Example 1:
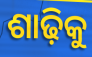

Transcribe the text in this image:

ଶାଢ଼ିକୁ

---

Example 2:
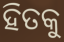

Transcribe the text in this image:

ହିତକୁ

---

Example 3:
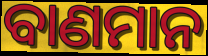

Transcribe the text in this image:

ବାଣମାନ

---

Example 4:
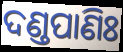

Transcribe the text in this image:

ଦଣ୍ଡପାଣିଃ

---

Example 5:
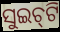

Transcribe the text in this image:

ସୁଇଚ୍‌ଟି